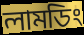
লামডিং